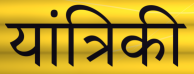
यांत्रिकी